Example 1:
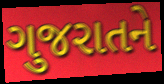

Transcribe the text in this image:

ગુજરાતને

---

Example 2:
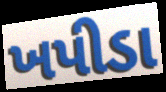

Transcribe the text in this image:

ખપીડા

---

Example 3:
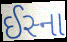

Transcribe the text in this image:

ઈસ્ના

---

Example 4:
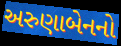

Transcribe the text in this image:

અરુણાબેનનો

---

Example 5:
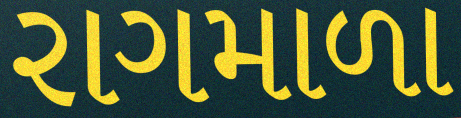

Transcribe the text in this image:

રાગમાળા